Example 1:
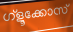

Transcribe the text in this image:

ഗ്ളൂക്കോസ്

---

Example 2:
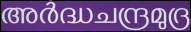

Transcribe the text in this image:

അർദ്ധചന്ദ്രമുദ്ര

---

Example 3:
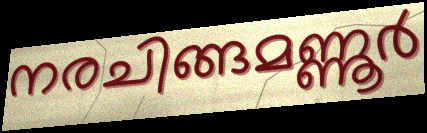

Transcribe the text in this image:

നരചിങ്ങമണ്ണൂർ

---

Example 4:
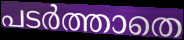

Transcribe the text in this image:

പടർത്താതെ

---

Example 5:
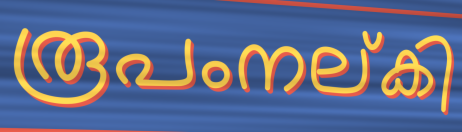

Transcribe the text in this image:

രൂപംനല്കി